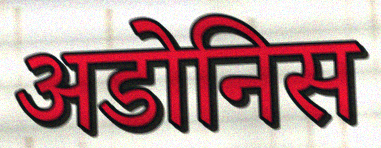
अडोनिस